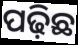
ପଢ଼ିଛ